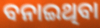
ବନାଇଥିବା